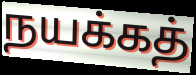
நயக்கத்